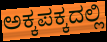
ಅಕ್ಕಪಕ್ಕದಲ್ಲಿ